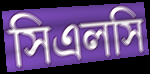
সিএলসি